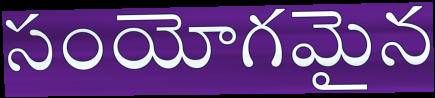
సంయోగమైన